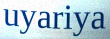
uyariya